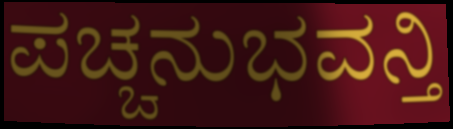
ಪಚ್ಚನುಭವನ್ತಿ